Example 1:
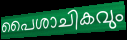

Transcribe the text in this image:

പൈശാചികവും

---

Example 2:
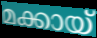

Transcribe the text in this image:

മക്കായ്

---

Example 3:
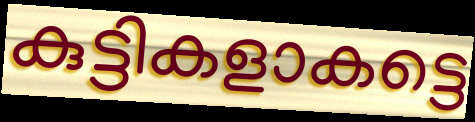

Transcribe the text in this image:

കുട്ടികളാകട്ടെ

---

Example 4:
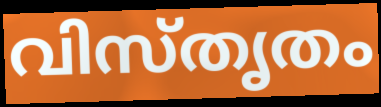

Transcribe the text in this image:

വിസ്തൃതം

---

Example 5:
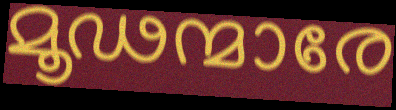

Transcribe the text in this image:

മൂഢന്മാരേ